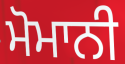
ਮੋਮਾਨੀ